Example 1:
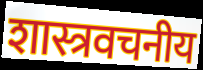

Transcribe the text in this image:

शास्त्रवचनीय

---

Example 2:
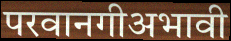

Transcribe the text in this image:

परवानगीअभावी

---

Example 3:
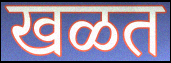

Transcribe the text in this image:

खळत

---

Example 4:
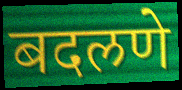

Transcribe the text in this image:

बदलणे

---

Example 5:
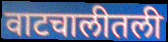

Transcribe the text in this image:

वाटचालीतली